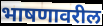
भाषणावरील